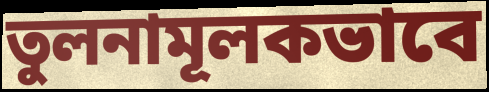
তুলনামূলকভাবে